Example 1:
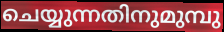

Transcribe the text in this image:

ചെയ്യുന്നതിനുമുമ്പു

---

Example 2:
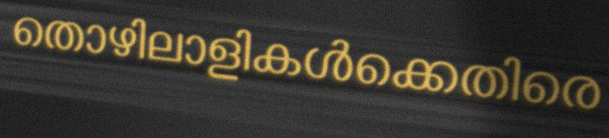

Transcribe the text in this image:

തൊഴിലാളികൾക്കെതിരെ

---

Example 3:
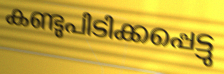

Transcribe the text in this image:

കണ്ടുപിടിക്കപ്പെട്ടു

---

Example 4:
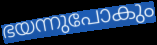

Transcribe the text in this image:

ഭയന്നുപോകും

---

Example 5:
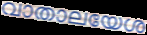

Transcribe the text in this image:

വാതാലയേശ